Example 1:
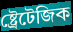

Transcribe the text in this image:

ষ্ট্ৰেটেজিক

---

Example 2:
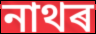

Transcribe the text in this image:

নাথৰ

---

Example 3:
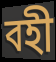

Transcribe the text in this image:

বহী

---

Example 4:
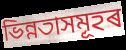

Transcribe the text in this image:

ভিন্নতাসমূহৰ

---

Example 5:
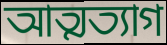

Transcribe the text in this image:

আত্মত্যাগ